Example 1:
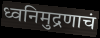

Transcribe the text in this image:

ध्वनिमुद्रणाचं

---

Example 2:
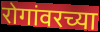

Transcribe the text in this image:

रोगांवरच्या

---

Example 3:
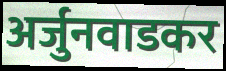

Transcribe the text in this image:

अर्जुनवाडकर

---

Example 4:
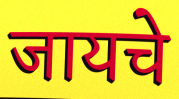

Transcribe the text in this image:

जायचे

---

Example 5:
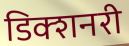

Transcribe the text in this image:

डिक्शनरी